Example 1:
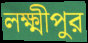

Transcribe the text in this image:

লক্ষ্মীপুর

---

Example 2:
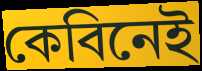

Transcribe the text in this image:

কেবিনেই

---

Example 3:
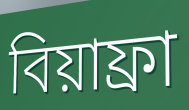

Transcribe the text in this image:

বিয়াফ্রা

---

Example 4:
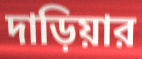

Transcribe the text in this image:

দাড়িয়ার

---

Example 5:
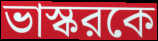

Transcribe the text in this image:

ভাস্করকে